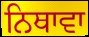
ਨਿਥਾਵਾ